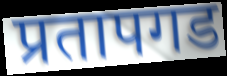
प्रतापगड